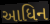
આધિન